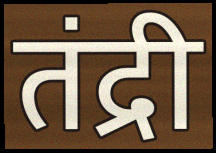
तंद्री